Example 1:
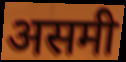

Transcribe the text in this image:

असमी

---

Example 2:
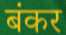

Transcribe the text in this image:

बंकर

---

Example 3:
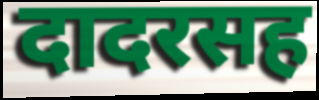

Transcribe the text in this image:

दादरसह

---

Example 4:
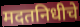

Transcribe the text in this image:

मदतनिधीचे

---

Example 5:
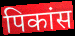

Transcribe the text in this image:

पिकांस